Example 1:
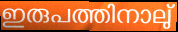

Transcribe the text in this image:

ഇരുപത്തിനാലു്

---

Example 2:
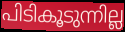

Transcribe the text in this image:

പിടികൂടുന്നില്ല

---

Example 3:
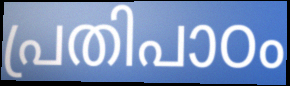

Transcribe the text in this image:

പ്രതിപാഠം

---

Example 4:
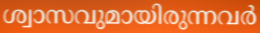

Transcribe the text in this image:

ശ്വാസവുമായിരുന്നവർ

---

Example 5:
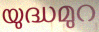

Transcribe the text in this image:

യുദ്ധമുറ